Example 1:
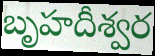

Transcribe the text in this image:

బృహదీశ్వర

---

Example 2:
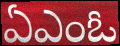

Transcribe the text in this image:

ఏఎంఓ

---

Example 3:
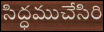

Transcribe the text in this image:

సిద్ధముచేసిరి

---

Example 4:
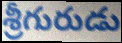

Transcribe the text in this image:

శ్రీగురుడు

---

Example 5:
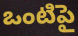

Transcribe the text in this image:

ఒంటిపై